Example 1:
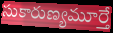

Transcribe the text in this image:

సుకారుణ్యమూర్తే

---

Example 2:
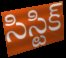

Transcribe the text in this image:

సిస్టిక్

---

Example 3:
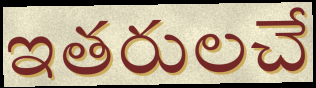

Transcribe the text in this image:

ఇతరులచే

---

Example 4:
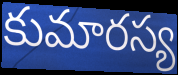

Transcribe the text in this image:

కుమారస్య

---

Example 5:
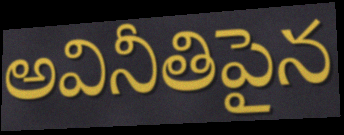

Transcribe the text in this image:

అవినీతిపైన